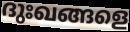
ദുഃഖങ്ങളെ